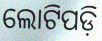
ଲୋଟିପଡ଼ି